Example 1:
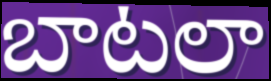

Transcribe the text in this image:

బాటలా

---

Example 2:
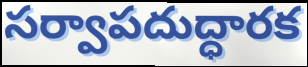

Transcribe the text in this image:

సర్వాపదుద్ధారక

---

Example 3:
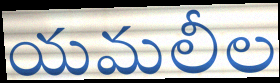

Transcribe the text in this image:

యమలీల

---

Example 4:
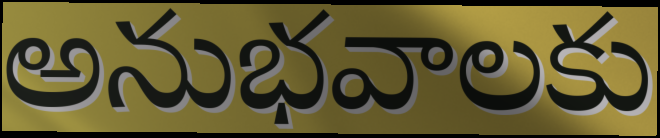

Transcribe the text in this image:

అనుభవాలకు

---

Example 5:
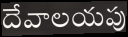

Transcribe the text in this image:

దేవాలయపు